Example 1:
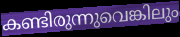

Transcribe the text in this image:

കണ്ടിരുന്നുവെങ്കിലും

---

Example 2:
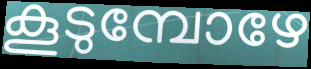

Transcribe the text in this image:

കൂടുമ്പോഴേ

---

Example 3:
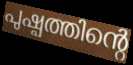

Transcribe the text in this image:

പുഷ്പത്തിന്റെ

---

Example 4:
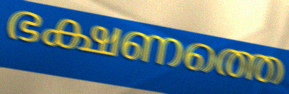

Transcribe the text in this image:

ഭക്ഷണത്തെ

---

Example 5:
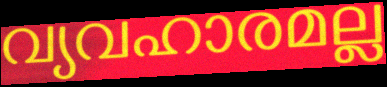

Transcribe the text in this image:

വ്യവഹാരമല്ല